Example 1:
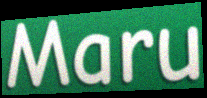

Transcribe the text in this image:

Maru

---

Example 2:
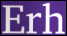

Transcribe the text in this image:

Erh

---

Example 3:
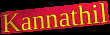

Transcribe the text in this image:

Kannathil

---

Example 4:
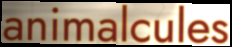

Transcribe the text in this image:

animalcules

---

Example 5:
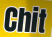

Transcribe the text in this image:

Chit